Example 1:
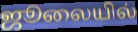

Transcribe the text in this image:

ஜூலையில்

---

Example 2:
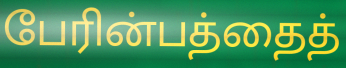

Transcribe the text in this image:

பேரின்பத்தைத்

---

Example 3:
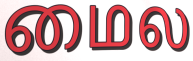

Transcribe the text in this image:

மைல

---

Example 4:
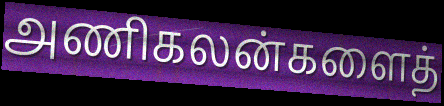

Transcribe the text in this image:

அணிகலன்களைத்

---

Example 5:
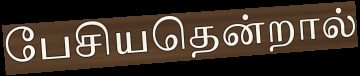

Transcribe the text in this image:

பேசியதென்றால்